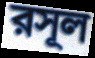
রসূল